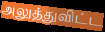
அலுத்துவிட்ட